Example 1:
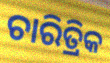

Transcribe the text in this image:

ଚାରିତ୍ରିକ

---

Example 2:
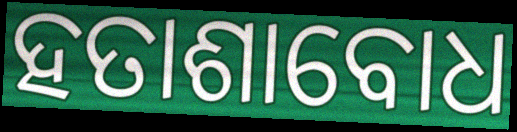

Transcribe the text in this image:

ହତାଶାବୋଧ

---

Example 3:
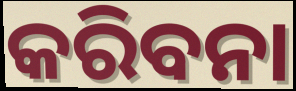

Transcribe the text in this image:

କରିବନା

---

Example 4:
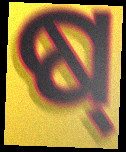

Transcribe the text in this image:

ଷ୍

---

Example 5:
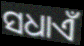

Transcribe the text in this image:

ସଧାଏଁ